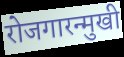
रोजगारन्मुखी